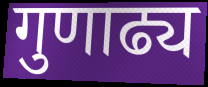
गुणाढ्य